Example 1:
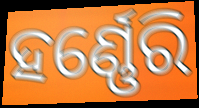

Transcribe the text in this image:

ହର୍ଣ୍ଣେରି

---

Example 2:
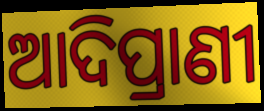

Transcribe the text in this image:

ଆଦିପ୍ରାଣୀ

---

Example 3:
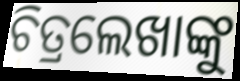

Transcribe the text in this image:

ଚିତ୍ରଲେଖାଙ୍କୁ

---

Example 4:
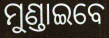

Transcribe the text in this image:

ମୁଣ୍ଡାଇବେ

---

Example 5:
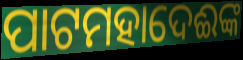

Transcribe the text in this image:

ପାଟମହାଦେଈଙ୍କ